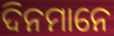
ଦିନମାନେ